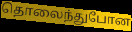
தொலைந்துபோன